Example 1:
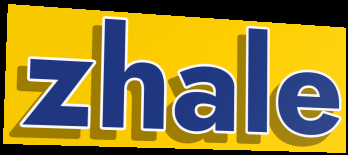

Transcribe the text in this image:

zhale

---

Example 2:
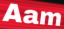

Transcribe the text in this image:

Aam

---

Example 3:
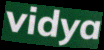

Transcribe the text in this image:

vidya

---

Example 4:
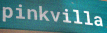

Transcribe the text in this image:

pinkvilla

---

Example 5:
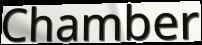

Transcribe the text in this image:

Chamber